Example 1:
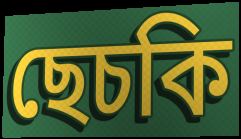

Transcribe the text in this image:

ছেচকি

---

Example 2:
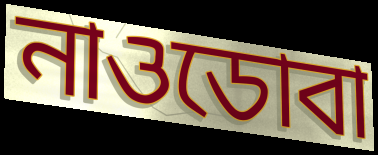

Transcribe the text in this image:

নাওডোবা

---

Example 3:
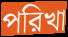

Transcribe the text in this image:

পরিখা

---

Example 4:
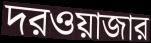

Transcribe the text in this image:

দরওয়াজার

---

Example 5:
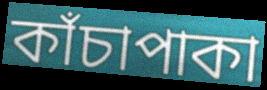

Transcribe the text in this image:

কাঁচাপাকা